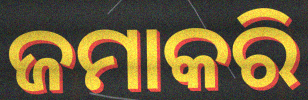
ଜମାକରି